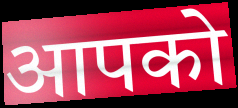
आपको